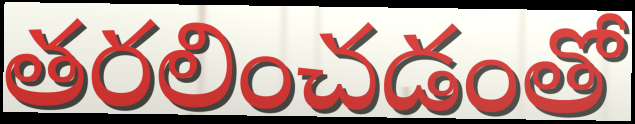
తరలించడంతో